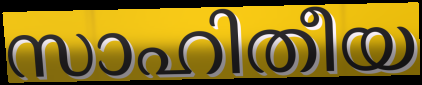
സാഹിതീയ